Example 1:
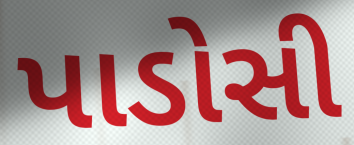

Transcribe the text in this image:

પાડોસી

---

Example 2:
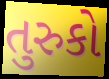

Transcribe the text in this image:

તુરુકો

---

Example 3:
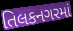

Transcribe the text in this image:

તિલકનગરમાં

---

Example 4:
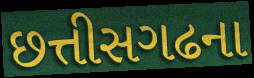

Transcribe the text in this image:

છત્તીસગઢના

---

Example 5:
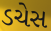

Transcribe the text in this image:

ડચેસ